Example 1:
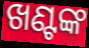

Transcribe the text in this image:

ଖଣ୍ଟଙ୍କ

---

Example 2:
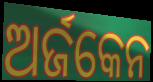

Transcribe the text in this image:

ଅର୍ଜକେନ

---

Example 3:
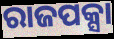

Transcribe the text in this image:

ରାଜପକ୍ସା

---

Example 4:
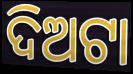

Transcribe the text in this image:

ଦିଅଟା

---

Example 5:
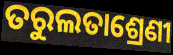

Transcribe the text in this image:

ତରୁଲତାଶ୍ରେଣୀ